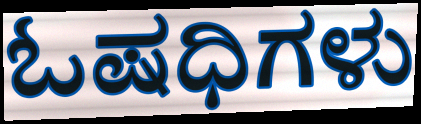
ಓಷಧಿಗಳು